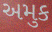
અમુક